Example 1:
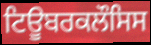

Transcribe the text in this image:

ਟਿਊਬਰਕਲੌਸਿਸ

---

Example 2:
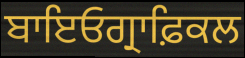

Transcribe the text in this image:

ਬਾਇਓਗ੍ਰਾਫ਼ਿਕਲ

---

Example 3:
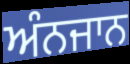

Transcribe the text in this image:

ਅੰਨਜਾਨ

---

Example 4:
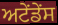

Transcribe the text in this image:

ਅਟੇਂਡੇਂਸ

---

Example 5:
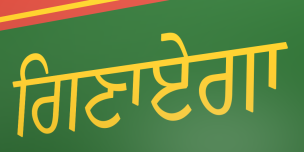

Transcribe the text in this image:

ਗਿਣਾਏਗਾ